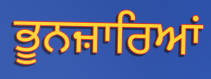
ਭੂਨਜ਼ਾਰਿਆਂ